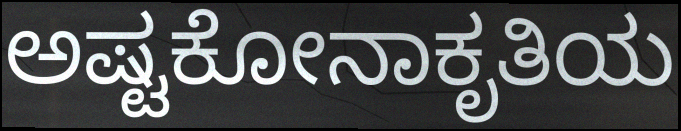
ಅಷ್ಟಕೋನಾಕೃತಿಯ